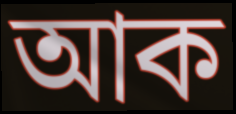
আক